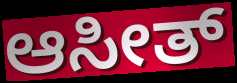
ಆಸೀತ್